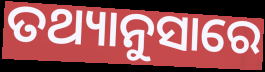
ତଥ୍ୟାନୁସାରେ